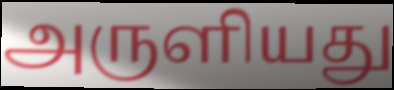
அருளியது